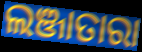
ଲଞ୍ଜାତାରା